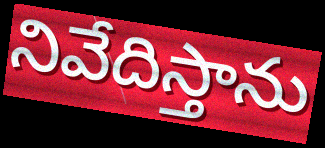
నివేదిస్తాను